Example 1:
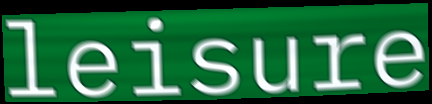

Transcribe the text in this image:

leisure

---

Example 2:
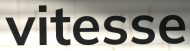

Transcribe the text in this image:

vitesse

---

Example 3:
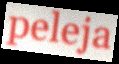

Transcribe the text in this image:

peleja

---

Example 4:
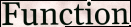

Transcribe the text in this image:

Function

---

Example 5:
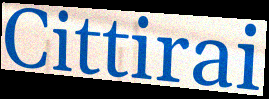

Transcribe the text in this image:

Cittirai